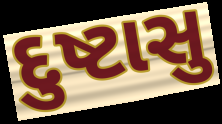
દુષ્ટાસુ